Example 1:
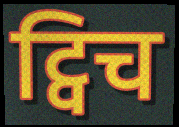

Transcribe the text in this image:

ट्विच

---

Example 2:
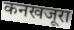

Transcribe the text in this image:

कनखजूरा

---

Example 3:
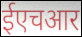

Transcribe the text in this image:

ईएचआर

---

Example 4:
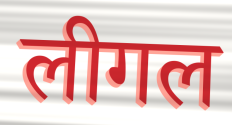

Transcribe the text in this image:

लीगल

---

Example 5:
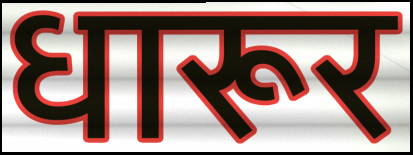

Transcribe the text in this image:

धारूर